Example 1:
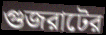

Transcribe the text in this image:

গুজরাটের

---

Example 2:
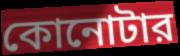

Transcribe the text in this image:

কোনোটার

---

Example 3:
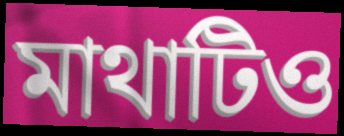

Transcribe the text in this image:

মাথাটিও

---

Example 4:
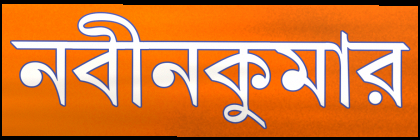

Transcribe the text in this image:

নবীনকুমার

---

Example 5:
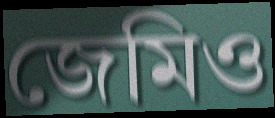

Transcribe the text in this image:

জেমিও